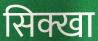
सिक्खा